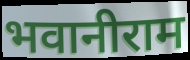
भवानीराम